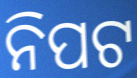
ନିପଟ